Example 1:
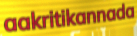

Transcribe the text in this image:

aakritikannada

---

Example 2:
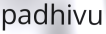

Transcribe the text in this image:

padhivu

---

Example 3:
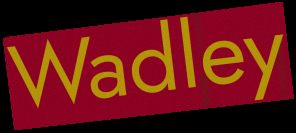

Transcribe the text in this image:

Wadley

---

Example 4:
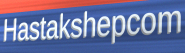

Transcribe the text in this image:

Hastakshepcom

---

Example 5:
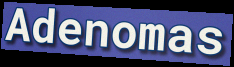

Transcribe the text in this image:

Adenomas